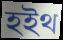
হইথ